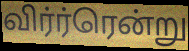
விர்ர்ரென்று